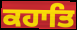
ਕਹਾਤਿ